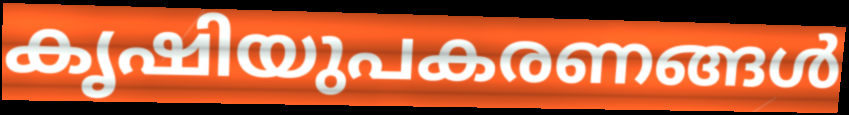
കൃഷിയുപകരണങ്ങൾ